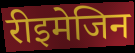
रीइमेजिन